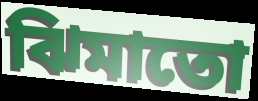
ঝিমাতো